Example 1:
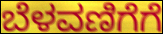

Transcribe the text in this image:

ಬೆಳವಣಿಗೆಗೆ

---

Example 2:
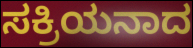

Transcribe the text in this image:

ಸಕ್ರಿಯನಾದ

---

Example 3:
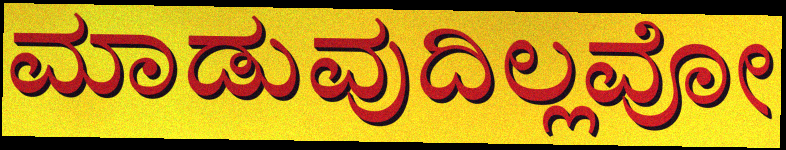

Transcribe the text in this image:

ಮಾಡುವುದಿಲ್ಲವೋ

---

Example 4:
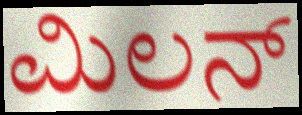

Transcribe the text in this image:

ಮಿಲನ್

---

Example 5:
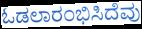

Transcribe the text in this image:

ಓಡಲಾರಂಭಿಸಿದೆವು